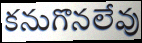
కనుగొనలేవు